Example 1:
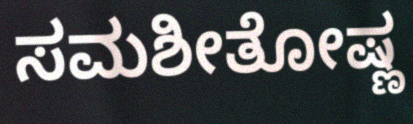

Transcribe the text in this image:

ಸಮಶೀತೋಷ್ಣ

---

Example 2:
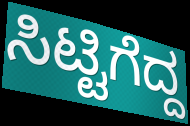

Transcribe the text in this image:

ಸಿಟ್ಟಿಗೆದ್ದ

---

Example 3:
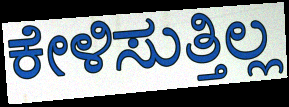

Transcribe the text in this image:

ಕೇಳಿಸುತ್ತಿಲ್ಲ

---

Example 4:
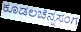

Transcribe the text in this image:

ಕೂಡಲಚೆನ್ನಸಂಗ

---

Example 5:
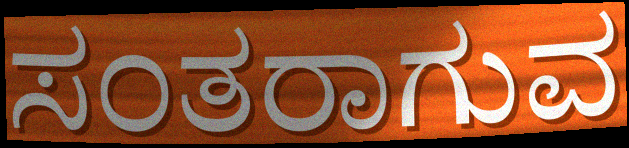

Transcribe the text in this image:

ಸಂತರಾಗುವ